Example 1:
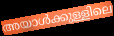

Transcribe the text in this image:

അയാൾക്കുള്ളിലെ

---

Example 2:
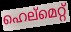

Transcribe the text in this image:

ഹെല്മെറ്റ്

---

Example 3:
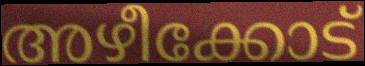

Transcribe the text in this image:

അഴീക്കോട്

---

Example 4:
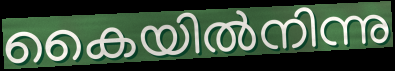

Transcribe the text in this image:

കൈയിൽനിന്നു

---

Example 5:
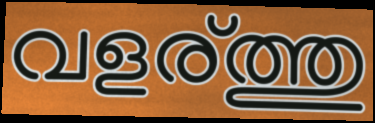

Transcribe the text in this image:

വളര്ത്തു